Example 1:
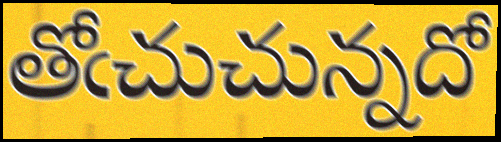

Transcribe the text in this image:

తోఁచుచున్నదో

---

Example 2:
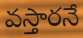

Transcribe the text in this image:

వస్తారనే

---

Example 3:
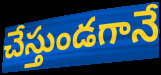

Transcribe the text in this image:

చేస్తుండగానే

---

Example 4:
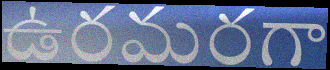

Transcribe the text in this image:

ఉరమరగా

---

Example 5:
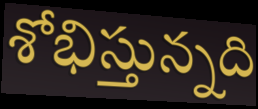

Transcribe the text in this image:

శోభిస్తున్నది